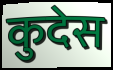
कुदेस